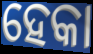
ହେକା